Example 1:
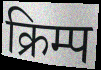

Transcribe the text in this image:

क्रिम्प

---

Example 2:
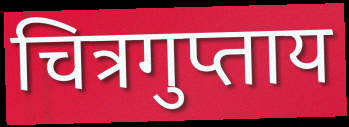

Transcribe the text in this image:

चित्रगुप्ताय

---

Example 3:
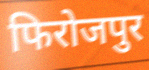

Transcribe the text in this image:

फिरोजपुर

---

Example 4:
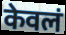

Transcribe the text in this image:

केवलं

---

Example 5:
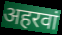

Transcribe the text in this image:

अहरवां